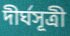
দীর্ঘসূত্রী